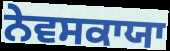
ਨੇਵਸਕਾਯਾ